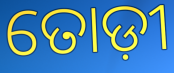
ତୋଡ଼ୀ